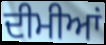
ਦੀਮੀਆਂ